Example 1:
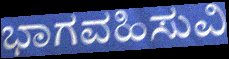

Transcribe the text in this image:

ಭಾಗವಹಿಸುವಿ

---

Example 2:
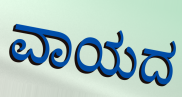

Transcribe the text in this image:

ವಾಯದ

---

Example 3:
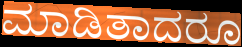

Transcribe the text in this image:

ಮಾಡಿತಾದರೂ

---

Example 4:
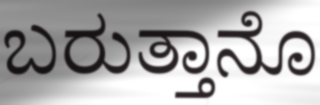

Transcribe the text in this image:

ಬರುತ್ತಾನೊ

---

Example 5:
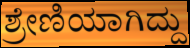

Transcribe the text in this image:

ಶ್ರೇಣಿಯಾಗಿದ್ದು